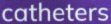
catheters